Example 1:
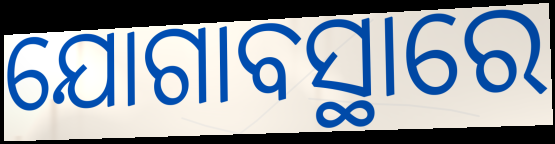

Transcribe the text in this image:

ଯୋଗାବସ୍ଥାରେ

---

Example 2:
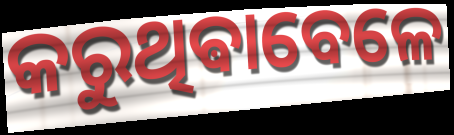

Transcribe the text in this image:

କରୁଥିଵାବେଳେ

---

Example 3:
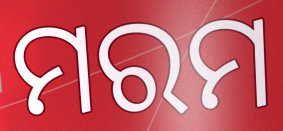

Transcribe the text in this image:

ମରମ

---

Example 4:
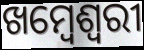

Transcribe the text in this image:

ଖମ୍ବେଶ୍ଵରୀ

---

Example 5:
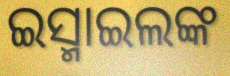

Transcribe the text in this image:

ଇସ୍ମାଇଲଙ୍କ